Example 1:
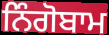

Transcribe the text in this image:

ਨਿੰਗੋਬਾਮ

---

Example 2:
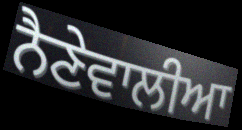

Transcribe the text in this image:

ਨੈਣੇਵਾਲੀਆ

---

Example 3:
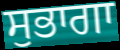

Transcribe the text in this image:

ਸੁਭਾਗਾ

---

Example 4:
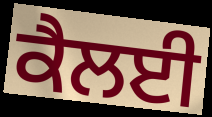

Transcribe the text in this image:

ਕੈਲਈ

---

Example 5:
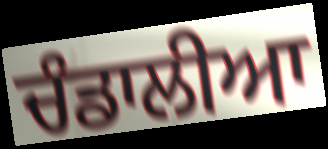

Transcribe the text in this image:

ਚੰਡਾਲੀਆ